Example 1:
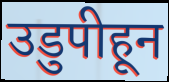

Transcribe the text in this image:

उडुपीहून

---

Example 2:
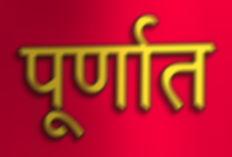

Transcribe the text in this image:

पूर्णात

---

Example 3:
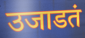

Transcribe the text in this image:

उजाडतं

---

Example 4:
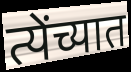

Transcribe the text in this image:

त्येंच्यात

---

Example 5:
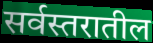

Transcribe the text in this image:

सर्वस्तरातील